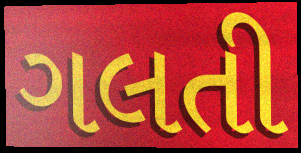
ગલતી